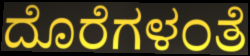
ದೊರೆಗಳಂತೆ